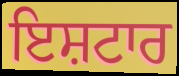
ਇਸ਼ਟਾਰ